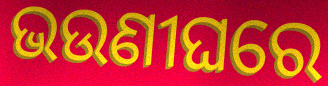
ଭଉଣୀଘରେ